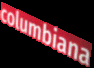
columbiana